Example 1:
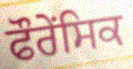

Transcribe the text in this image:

ਫੌਰੇਂਸਿਕ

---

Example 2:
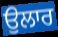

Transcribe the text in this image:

ਉਲਾਰ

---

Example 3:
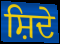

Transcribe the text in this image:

ਸ਼ਿਦੇ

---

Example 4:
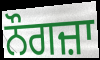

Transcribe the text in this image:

ਨੌਗਜ਼ਾ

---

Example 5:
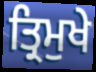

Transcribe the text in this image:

ਤ੍ਰਿਮੁਖੇ